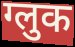
ग्लुक